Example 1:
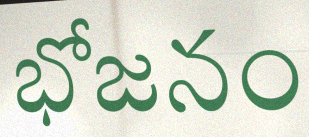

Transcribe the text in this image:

భోజనం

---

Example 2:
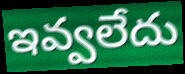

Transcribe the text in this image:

ఇవ్వలేదు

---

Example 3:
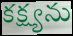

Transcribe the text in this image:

కక్ష్యను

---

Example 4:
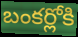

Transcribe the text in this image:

బంకర్లోకి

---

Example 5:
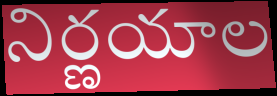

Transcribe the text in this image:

నిర్ణయాల